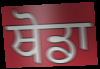
ਥੋਡਾ